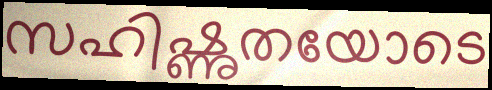
സഹിഷ്ണുതയോടെ